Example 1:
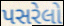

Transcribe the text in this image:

પસરેલો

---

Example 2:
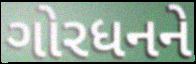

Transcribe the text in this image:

ગોરધનને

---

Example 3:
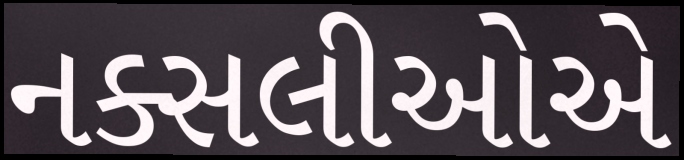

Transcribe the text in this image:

નક્સલીઓએ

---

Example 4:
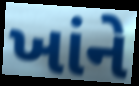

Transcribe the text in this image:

ખાંને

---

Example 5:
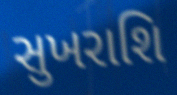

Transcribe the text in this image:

સુખરાશિ